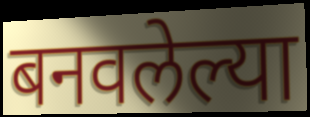
बनवलेल्या